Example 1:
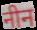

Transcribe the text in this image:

नीन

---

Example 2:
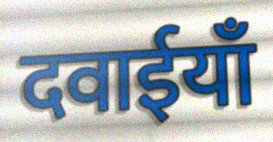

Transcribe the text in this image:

दवाईयाँ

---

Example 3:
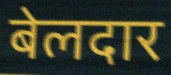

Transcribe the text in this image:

बेलदार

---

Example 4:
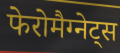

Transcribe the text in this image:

फेरोमैग्नेट्स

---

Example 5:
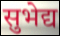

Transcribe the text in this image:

सुभेद्य